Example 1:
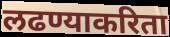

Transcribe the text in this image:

लढण्याकरिता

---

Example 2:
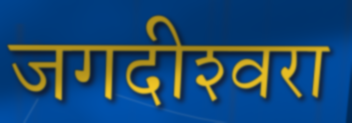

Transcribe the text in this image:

जगदीश्वरा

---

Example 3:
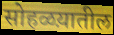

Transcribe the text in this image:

सोहळय़ातील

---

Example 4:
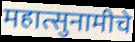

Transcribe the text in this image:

महात्सुनामीचे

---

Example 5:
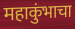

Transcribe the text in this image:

महाकुंभाचा